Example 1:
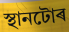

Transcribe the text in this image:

স্থানটোৰ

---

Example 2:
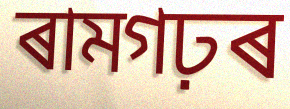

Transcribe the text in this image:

ৰামগঢ়ৰ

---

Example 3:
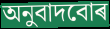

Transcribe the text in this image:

অনুবাদবোৰ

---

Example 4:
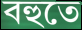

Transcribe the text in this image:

বহুতে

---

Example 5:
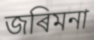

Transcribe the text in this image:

জৰিমনা